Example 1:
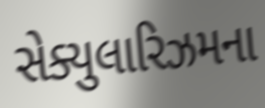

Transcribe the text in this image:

સેક્યુલારિઝમના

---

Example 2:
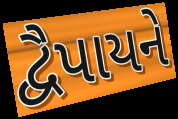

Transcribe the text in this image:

દ્વૈપાયને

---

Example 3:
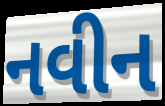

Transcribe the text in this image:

નવીન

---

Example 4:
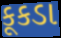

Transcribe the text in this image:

કૂકડા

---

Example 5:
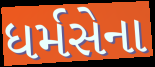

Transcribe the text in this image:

ધર્મસેના